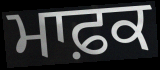
ਮਾਫ਼ਕ